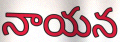
నాయన